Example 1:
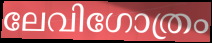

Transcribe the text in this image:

ലേവിഗോത്രം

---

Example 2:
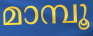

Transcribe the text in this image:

മാമ്പൂ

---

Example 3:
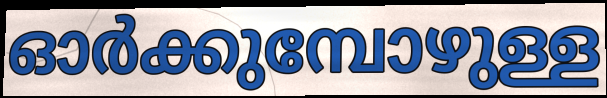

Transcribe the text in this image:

ഓർക്കുമ്പോഴുള്ള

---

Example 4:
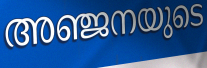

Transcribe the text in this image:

അഞ്ജനയുടെ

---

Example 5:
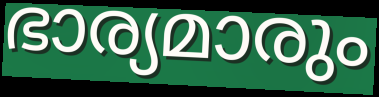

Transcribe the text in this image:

ഭാര്യമാരും